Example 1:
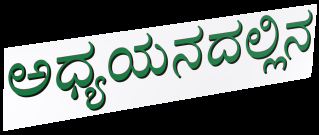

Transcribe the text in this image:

ಅಧ್ಯಯನದಲ್ಲಿನ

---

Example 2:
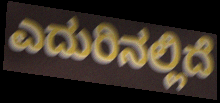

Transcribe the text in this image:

ಎದುರಿನಲ್ಲಿದೆ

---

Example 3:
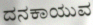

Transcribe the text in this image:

ದನಕಾಯುವ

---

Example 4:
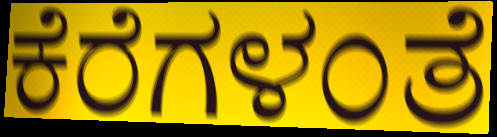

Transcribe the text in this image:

ಕೆರೆಗಳಂತೆ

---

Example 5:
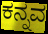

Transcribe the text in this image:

ಕನ್ನವ